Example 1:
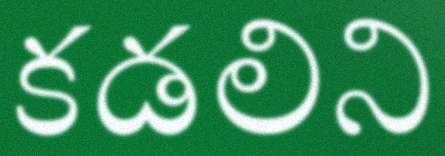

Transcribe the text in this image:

కడలిని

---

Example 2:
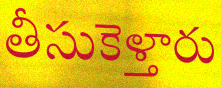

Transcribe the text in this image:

తీసుకెళ్తారు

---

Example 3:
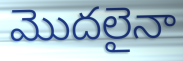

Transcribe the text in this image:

మొదలైనా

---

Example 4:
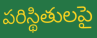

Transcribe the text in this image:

పరిస్థితులపై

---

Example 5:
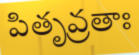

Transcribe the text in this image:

పితృవ్రతాః